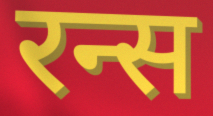
रन्स